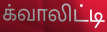
க்வாலிட்டி